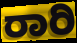
ರಾರಿ